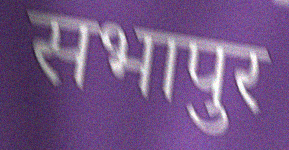
सभापुर